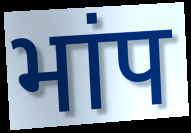
भांप